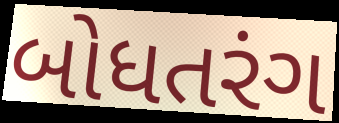
બોધતરંગ